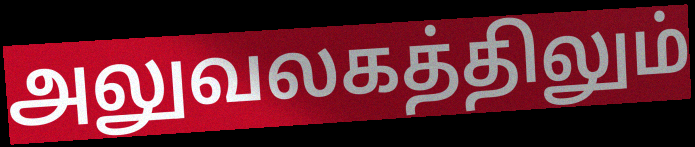
அலுவலகத்திலும்